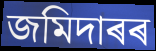
জমিদাৰৰ